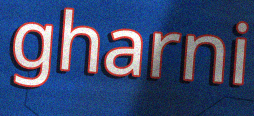
gharni